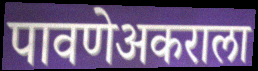
पावणेअकराला